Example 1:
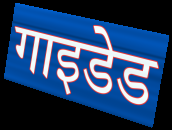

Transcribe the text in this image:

गाइडेड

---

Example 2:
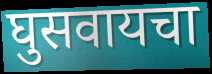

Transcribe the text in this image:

घुसवायचा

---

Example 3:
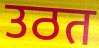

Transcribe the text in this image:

उठत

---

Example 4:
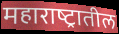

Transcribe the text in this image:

महाराष्ट्रातील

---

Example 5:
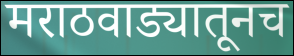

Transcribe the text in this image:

मराठवाड्यातूनच